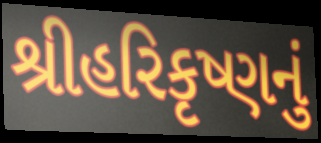
શ્રીહરિકૃષ્ણનું